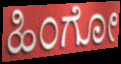
ಹಿಂಗೋ